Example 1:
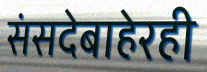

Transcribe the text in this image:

संसदेबाहेरही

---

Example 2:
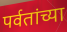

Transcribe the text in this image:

पर्वतांच्या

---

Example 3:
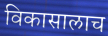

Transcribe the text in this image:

विकासालाच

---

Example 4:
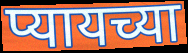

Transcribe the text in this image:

प्यायच्या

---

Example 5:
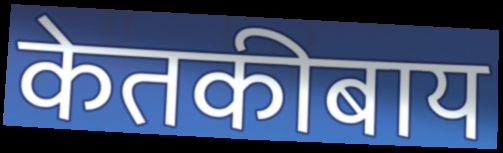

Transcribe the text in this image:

केतकीबाय